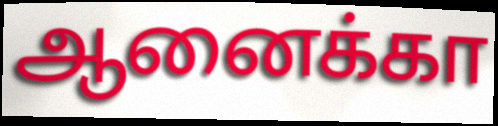
ஆனைக்கா